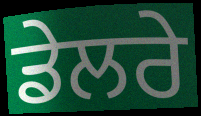
ਡੇਲਰੇ